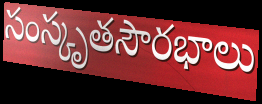
సంస్కృతసౌరభాలు